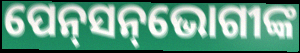
ପେନ୍‌ସନ୍‌ଭୋଗୀଙ୍କ